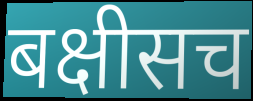
बक्षीसच